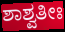
ಶಾಶ್ವತೀಃ